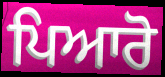
ਪਿਆਰੋ